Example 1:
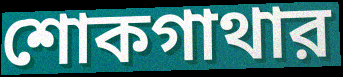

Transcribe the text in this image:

শোকগাথার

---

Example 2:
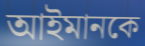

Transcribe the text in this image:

আইমানকে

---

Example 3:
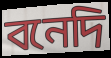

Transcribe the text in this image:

বনেদি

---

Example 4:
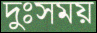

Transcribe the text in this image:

দুঃসময়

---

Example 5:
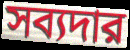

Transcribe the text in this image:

সব্যদার